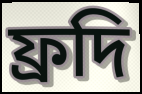
ফ্রদি